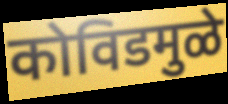
कोविडमुळे